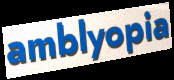
amblyopia